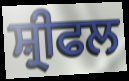
ਸ਼੍ਰੀਫਲ